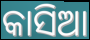
କାସିଆ